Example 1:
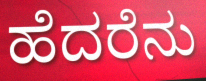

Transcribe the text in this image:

ಹೆದರೆನು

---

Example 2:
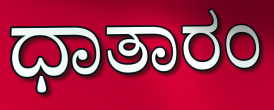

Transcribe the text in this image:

ಧಾತಾರಂ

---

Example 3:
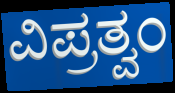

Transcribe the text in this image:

ವಿಪ್ರತ್ವಂ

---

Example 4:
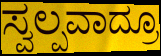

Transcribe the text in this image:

ಸ್ವಲ್ಪವಾದ್ರೂ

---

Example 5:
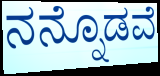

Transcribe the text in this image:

ನನ್ನೊಡವೆ